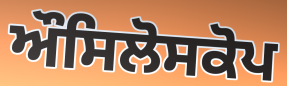
ਔਸਿਲੋਸਕੋਪ